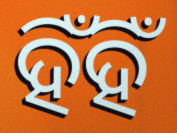
ହିଁହିଁ